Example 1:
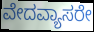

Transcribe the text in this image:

ವೇದವ್ಯಾಸರೇ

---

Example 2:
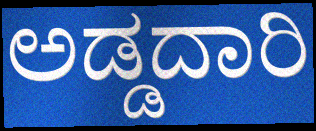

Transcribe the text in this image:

ಅಡ್ಡದಾರಿ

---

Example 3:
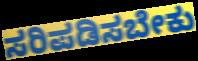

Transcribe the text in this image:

ಸರಿಪಡಿಸಬೇಕು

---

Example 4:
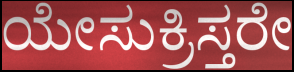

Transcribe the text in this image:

ಯೇಸುಕ್ರಿಸ್ತರೇ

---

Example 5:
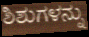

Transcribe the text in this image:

ಶಿಶುಗಳನ್ನು